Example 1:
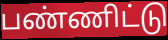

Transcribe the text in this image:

பண்ணிட்டு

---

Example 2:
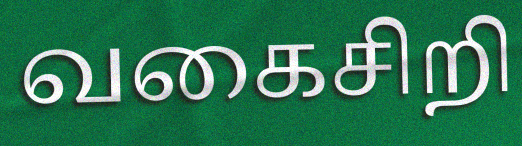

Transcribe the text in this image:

வகைசிறி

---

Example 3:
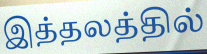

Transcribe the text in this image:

இத்தலத்தில்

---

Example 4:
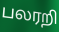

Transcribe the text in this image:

பலரறி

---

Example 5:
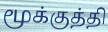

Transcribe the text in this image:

மூக்குத்தி